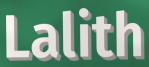
Lalith